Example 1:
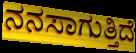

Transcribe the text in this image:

ನನಸಾಗುತ್ತಿದೆ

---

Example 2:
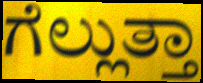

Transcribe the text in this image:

ಗೆಲ್ಲುತ್ತಾ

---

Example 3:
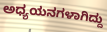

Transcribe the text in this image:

ಅಧ್ಯಯನಗಳಾಗಿದ್ದು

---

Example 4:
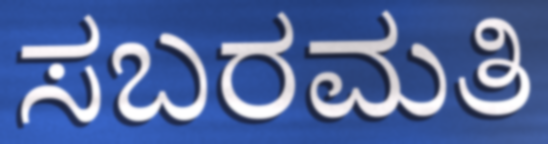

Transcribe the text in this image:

ಸಬರಮತಿ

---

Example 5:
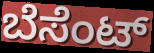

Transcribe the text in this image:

ಬೆಸೆಂಟ್